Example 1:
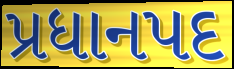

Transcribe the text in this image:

પ્રધાનપદ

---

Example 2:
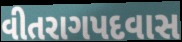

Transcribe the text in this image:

વીતરાગપદવાસ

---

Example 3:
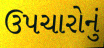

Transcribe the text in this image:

ઉપચારોનું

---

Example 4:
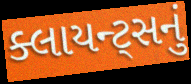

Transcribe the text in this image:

ક્લાયન્ટ્સનું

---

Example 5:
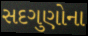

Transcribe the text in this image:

સદગુણોના